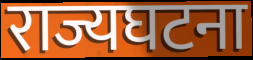
राज्यघटना